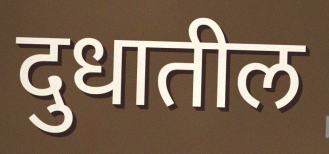
दुधातील